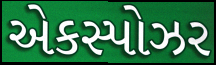
એકસ્પોઝર